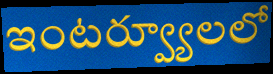
ఇంటర్వ్యూలలో